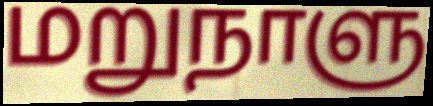
மறுநாளு